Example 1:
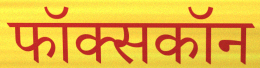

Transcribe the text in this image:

फॉक्सकॉन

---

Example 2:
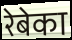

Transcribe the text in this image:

रेबेका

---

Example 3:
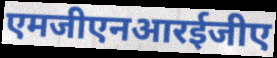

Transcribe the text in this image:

एमजीएनआरईजीए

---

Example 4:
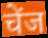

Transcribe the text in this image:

चेंज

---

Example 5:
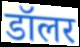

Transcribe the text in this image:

डॉलर